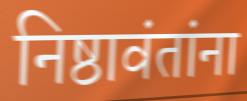
निष्ठावंतांना